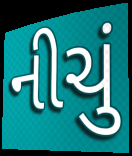
નીચું